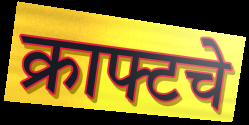
क्राफ्टचे